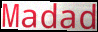
Madad